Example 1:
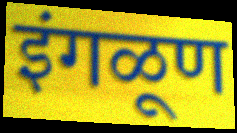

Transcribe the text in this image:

इंगळूण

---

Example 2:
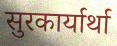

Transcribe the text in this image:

सुरकार्यार्था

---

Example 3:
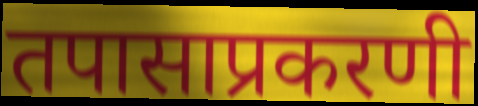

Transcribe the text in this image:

तपासाप्रकरणी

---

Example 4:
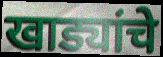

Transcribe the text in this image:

खाड्यांचे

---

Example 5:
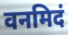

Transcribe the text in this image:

वनमिदं